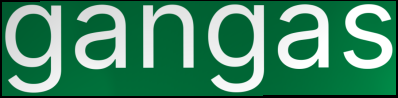
gangas